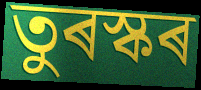
তুৰস্কৰ